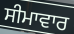
ਸੀਮਾਵਾਰ